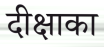
दीक्षाका